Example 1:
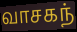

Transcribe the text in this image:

வாசகந்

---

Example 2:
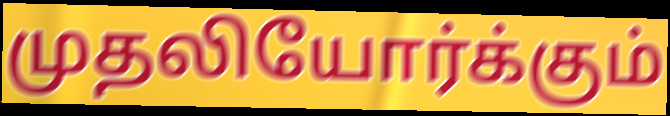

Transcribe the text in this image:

முதலியோர்க்கும்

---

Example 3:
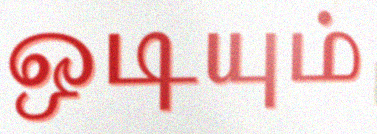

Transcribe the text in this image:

ஒடியும்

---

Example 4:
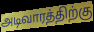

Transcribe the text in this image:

அடிவாரத்திற்கு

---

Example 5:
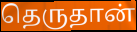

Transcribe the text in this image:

தெருதான்